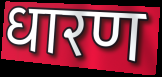
धारण